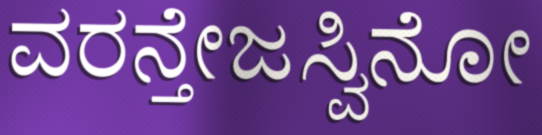
ವರನ್ತೇಜಸ್ವಿನೋ